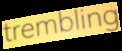
trembling